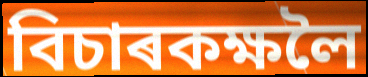
বিচাৰকক্ষলৈ